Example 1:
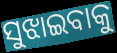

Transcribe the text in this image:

ସୁଝାଇବାକୁ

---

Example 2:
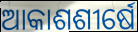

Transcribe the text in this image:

ଆକାଶଶୀର୍ଷେ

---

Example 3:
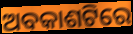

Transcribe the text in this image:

ଅବକାଶଟିରେ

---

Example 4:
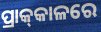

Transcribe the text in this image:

ପ୍ରାକ୍‌କାଳରେ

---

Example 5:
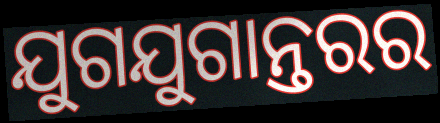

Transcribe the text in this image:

ଯୁଗଯୁଗାନ୍ତରର